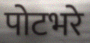
पोटभरे